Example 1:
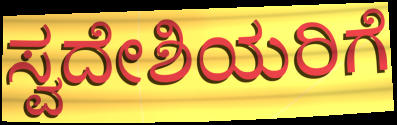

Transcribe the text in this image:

ಸ್ವದೇಶಿಯರಿಗೆ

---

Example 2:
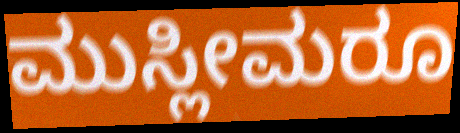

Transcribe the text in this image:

ಮುಸ್ಲೀಮರೂ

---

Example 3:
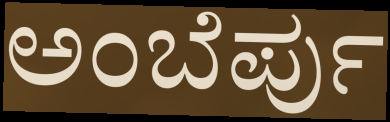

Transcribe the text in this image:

ಅಂಬೆರ್ಪು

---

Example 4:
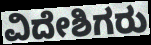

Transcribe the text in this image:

ವಿದೇಶಿಗರು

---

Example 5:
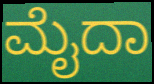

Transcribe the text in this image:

ಮೈದಾ